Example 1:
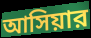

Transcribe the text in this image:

আসিয়ার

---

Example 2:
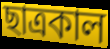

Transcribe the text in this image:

ছাত্রকাল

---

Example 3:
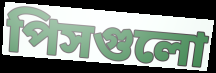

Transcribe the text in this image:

পিসগুলো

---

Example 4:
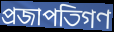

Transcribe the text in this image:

প্রজাপতিগণ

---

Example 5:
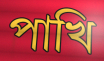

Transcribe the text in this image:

পাখি